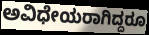
ಅವಿಧೇಯರಾಗಿದ್ದರೂ